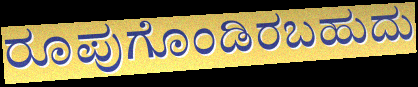
ರೂಪುಗೊಂಡಿರಬಹುದು